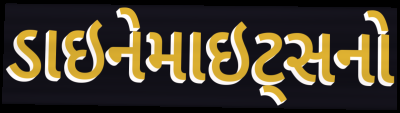
ડાઇનેમાઇટ્સનો